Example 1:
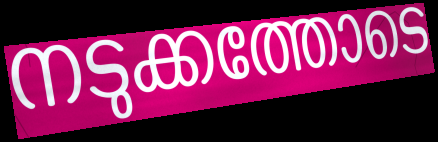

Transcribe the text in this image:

നടുക്കത്തോടെ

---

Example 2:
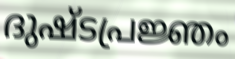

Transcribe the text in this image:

ദുഷ്ടപ്രജ്ഞം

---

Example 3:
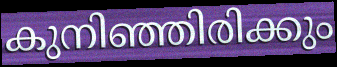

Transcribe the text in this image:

കുനിഞ്ഞിരിക്കും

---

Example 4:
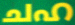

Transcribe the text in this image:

ചഹ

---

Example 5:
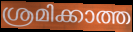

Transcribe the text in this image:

ശ്രമിക്കാത്ത